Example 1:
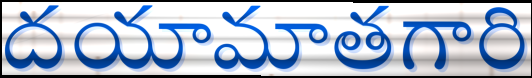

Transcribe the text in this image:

దయామాతగారి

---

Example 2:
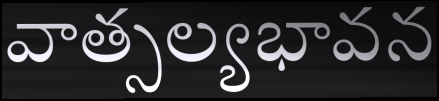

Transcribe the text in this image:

వాత్సల్యభావన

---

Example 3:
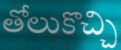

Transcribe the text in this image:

తోలుకొచ్చి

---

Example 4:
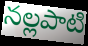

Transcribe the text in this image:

నల్లపాటి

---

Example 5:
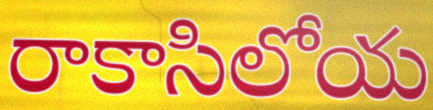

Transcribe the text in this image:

రాకాసిలోయ